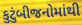
કુટુંબીજનોમાંથી